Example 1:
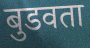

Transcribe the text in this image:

बुडवता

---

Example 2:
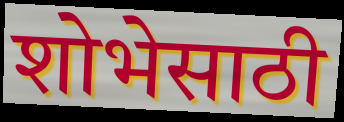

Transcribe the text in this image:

शोभेसाठी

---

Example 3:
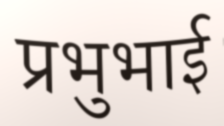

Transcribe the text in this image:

प्रभुभाई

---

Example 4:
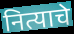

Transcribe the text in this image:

नित्याचे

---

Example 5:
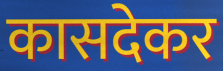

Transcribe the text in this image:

कासदेकर